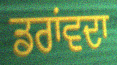
ਡਰਾਂਵਦਾ